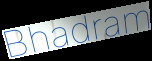
Bhadram